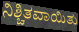
ನಿಶ್ಚಿತವಾಯಿತು